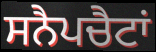
ਸਨੈਪਚੈਟਾਂ